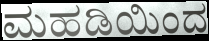
ಮಹಡಿಯಿಂದ